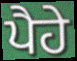
ਪੈਹੇ